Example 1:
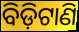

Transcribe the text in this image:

ବିଡ଼ିଟାଣି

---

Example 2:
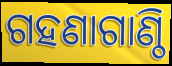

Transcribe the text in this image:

ଗହଣାଗାଣ୍ଠି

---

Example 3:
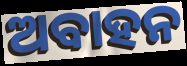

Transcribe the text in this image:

ଅବାହନ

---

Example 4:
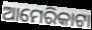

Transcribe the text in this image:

ଆମେରିକାଟା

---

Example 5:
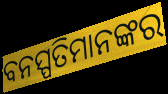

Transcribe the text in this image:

ବନସ୍ପତିମାନଙ୍କର